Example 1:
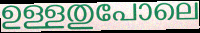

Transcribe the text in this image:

ഉള്ളതുപോലെ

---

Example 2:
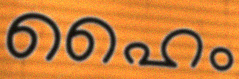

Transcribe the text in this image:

ഹൈം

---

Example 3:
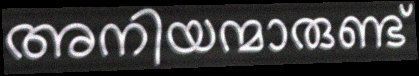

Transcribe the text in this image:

അനിയന്മാരുണ്ട്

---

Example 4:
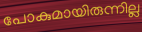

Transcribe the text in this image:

പോകുമായിരുന്നില്ല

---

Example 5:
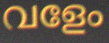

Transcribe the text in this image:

വളേം